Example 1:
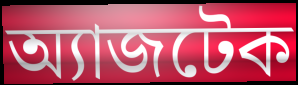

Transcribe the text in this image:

অ্যাজটেক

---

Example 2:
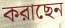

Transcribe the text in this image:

করাছেন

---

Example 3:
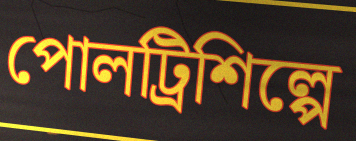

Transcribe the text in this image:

পোলট্রিশিল্পে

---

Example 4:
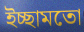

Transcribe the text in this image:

ইচ্ছামতো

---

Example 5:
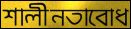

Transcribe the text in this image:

শালীনতাবোধ